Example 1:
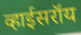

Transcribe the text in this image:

व्हाईसरॉय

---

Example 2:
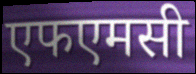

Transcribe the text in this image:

एफएमसी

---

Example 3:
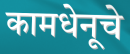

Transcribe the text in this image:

कामधेनूचे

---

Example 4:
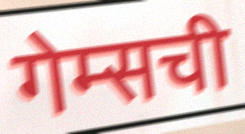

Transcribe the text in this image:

गेम्सची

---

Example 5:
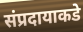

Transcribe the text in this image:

संप्रदायाकडे